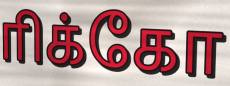
ரிக்கோ